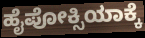
ಹೈಪೋಕ್ಸಿಯಾಕ್ಕೆ